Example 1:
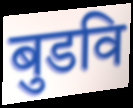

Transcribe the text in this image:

बुडवि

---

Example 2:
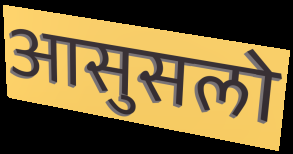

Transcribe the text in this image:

आसुसलो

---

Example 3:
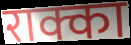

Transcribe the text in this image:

राक्का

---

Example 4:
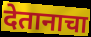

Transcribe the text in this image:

देतानाचा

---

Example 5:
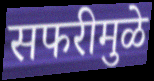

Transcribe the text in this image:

सफरीमुळे